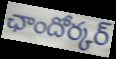
ఛాందోర్కర్